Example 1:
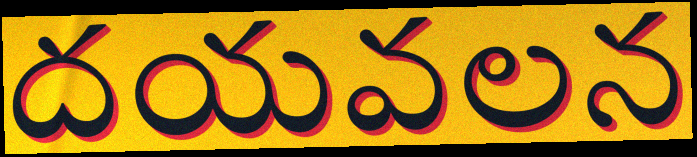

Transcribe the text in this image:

దయవలన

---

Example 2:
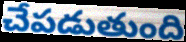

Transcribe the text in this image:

చేపడుతుంది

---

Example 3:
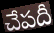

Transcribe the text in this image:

చేపదీ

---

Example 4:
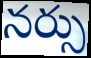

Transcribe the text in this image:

నర్సు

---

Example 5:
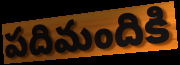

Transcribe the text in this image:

పదిమందికి